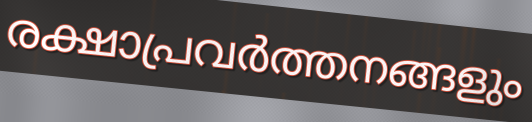
രക്ഷാപ്രവർത്തനങ്ങളും